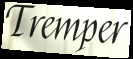
Tremper